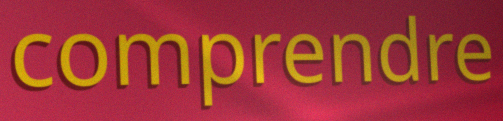
comprendre